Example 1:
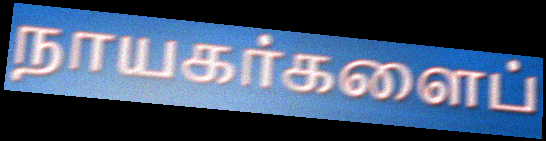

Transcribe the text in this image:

நாயகர்களைப்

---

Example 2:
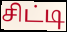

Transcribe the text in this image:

சிட்டி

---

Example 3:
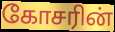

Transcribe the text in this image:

கோசரின்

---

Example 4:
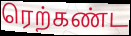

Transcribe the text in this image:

ரெற்கண்ட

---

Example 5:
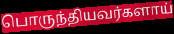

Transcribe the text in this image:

பொருந்தியவர்களாய்